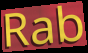
Rab